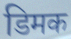
डिमक